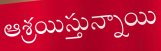
ఆశ్రయిస్తున్నాయి